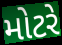
મોટરે